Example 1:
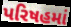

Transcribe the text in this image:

પરિષહમાં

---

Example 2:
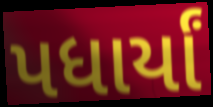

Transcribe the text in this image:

પધાર્યાં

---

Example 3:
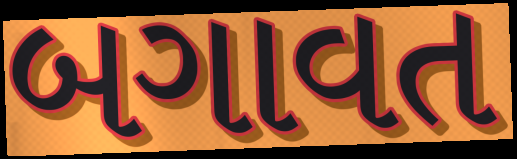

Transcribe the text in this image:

બગાવત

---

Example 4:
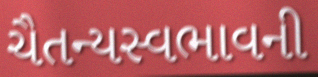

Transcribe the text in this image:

ચૈતન્યસ્વભાવની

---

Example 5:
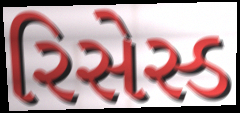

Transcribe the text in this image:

રિસેસ્ડ